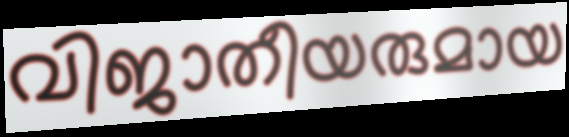
വിജാതീയരുമായ